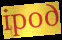
ipod